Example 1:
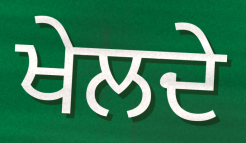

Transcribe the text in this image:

ਖੇਲਦੇ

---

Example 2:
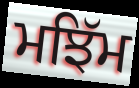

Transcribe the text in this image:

ਮਝਿੱਮ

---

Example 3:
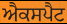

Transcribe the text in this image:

ਐਕਸਪੈਟ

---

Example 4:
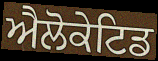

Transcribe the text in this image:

ਐਲੋਕੇਟਿਡ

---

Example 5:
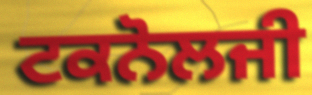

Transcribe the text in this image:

ਟਕਨੋਲਜੀ